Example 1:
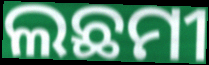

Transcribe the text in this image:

ଲଛମୀ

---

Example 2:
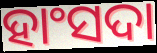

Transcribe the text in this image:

ହାଂସଦା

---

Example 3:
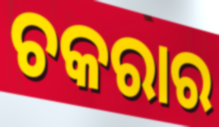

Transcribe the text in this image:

ଚକରାର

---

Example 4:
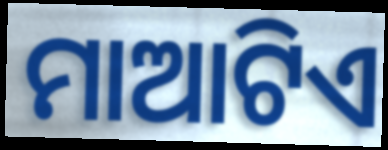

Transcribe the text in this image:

ମାଆଟିଏ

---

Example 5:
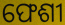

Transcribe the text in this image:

ଫେଶୀ